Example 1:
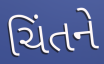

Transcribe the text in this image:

ચિંતને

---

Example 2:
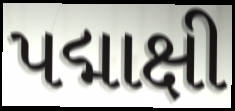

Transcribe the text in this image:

પદ્માક્ષી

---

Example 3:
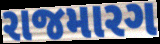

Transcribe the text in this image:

રાજમારગ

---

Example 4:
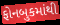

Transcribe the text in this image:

ફોનબુકમાંથી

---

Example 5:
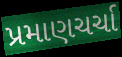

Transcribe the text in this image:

પ્રમાણચર્ચા